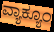
ವ್ಯಾಕ್ಯೂಂ